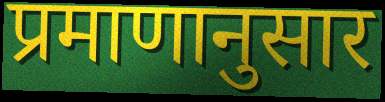
प्रमाणानुसार